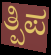
ತ್ಪಿಪ